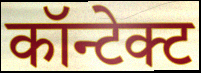
कॉन्टेक्ट